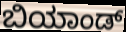
ಬಿಯಾಂಡ್